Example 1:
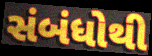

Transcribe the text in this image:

સંબંધોથી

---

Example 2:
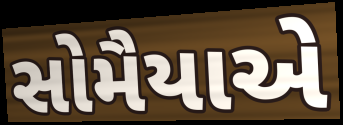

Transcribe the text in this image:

સોમૈયાએ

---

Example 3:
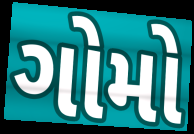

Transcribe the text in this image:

ગોમો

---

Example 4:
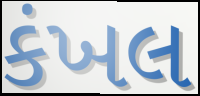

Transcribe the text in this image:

કંખલ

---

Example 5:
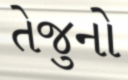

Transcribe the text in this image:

તેજુનો